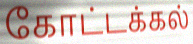
கோட்டக்கல்